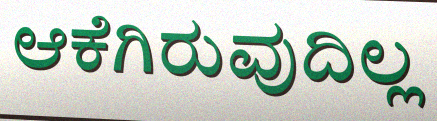
ಆಕೆಗಿರುವುದಿಲ್ಲ